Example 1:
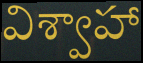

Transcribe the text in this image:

విశ్వాహా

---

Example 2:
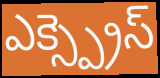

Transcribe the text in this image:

ఎక్స్ప్రెస్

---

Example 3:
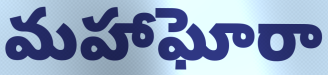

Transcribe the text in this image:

మహాఘోరా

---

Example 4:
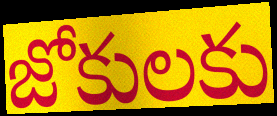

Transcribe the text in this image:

జోకులకు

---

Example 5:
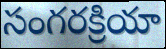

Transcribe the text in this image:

సంగరక్రియా